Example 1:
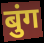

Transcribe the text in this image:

बुंग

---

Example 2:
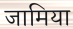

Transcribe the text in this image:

जामिया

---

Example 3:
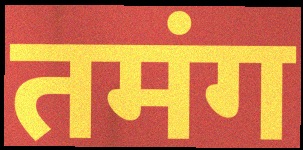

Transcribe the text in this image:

तमंग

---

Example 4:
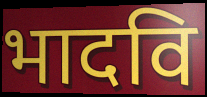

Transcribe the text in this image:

भादवि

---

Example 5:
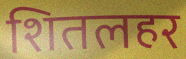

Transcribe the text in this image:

शितलहर